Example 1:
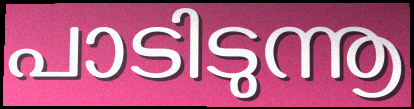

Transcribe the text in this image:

പാടിടുന്നൂ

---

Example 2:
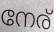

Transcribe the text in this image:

നേര്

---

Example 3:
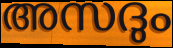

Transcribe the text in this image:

അസദും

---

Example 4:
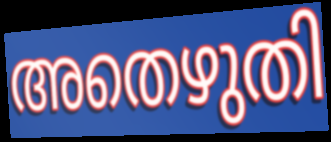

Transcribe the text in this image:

അതെഴുതി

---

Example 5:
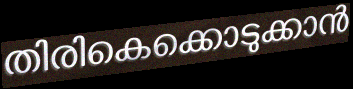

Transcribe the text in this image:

തിരികെക്കൊടുക്കാൻ